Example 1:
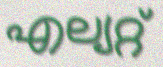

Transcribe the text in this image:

എല്യറ്റ്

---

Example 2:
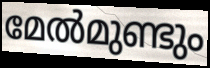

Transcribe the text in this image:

മേൽമുണ്ടും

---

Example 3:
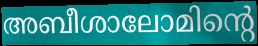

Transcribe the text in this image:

അബീശാലോമിന്റെ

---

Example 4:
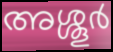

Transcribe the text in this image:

അശ്ശൂർ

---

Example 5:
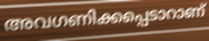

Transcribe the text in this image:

അവഗണിക്കപ്പെടാറാണ്